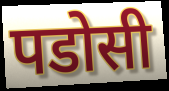
पडोसी